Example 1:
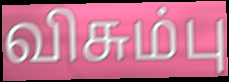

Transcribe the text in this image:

விசும்பு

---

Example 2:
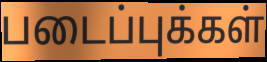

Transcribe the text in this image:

படைப்புக்கள்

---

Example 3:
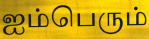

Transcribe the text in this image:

ஐம்பெரும்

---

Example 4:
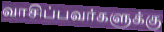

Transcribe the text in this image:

வாசிப்பவர்களுக்கு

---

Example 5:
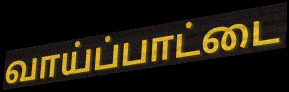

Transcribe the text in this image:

வாய்ப்பாட்டை